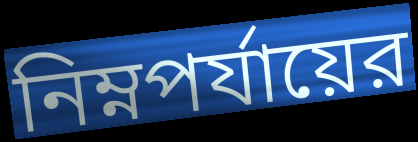
নিম্নপর্যায়ের